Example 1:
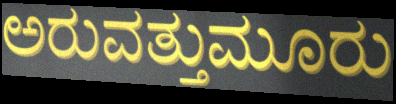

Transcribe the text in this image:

ಅರುವತ್ತುಮೂರು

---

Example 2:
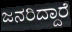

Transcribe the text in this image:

ಜನರಿದ್ದಾರೆ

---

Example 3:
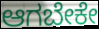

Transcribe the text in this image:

ಆಗಬೇಕೇ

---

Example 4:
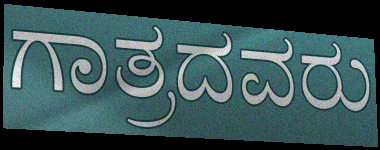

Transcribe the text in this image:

ಗಾತ್ರದವರು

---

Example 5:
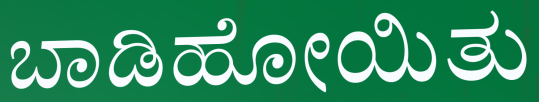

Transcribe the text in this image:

ಬಾಡಿಹೋಯಿತು